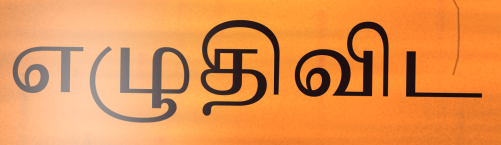
எழுதிவிட